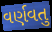
વર્ણવતુ